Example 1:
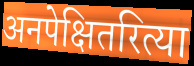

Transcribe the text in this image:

अनपेक्षितरित्या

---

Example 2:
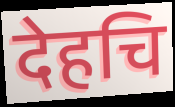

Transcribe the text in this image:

देहचि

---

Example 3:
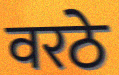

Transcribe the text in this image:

वरठे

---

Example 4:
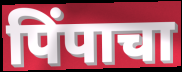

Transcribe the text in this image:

पिंपाचा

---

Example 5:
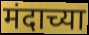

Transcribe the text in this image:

मंदाच्या